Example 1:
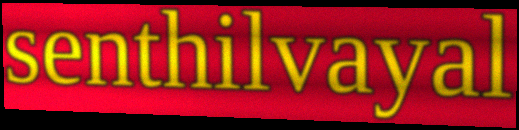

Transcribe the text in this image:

senthilvayal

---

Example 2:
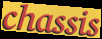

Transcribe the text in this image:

chassis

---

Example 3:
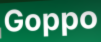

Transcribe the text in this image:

Goppo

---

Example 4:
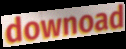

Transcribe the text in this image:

downoad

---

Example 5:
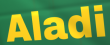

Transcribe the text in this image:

Aladi